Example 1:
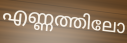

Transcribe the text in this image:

എണ്ണത്തിലോ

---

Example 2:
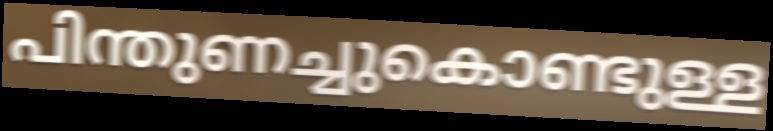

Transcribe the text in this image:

പിന്തുണച്ചുകൊണ്ടുള്ള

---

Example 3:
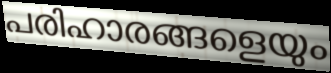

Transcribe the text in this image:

പരിഹാരങ്ങളെയും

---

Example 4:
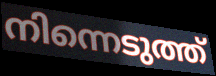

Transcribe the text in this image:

നിന്നെടുത്ത്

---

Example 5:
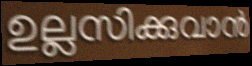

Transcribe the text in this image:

ഉല്ലസിക്കുവാൻ